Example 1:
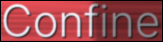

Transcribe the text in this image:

Confine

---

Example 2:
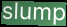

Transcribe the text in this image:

slump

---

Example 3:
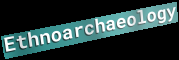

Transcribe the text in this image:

Ethnoarchaeology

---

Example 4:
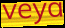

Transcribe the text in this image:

veya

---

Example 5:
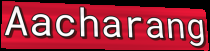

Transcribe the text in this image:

Aacharang